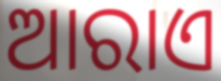
ଆରାଏ